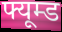
फ्यूम्ड